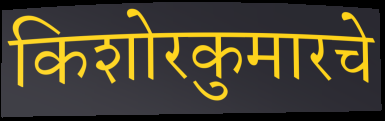
किशोरकुमारचे